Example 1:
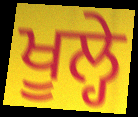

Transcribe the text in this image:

ਖੂਲ੍ਹ੍ਹੇ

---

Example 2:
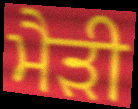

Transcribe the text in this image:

ਮੈੜੀ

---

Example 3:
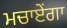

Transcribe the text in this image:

ਮਚਾਏਂਗਾ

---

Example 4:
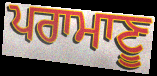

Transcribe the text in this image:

ਪਰਾਮਾਣੂ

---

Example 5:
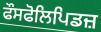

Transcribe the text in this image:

ਫੌਸਫੋਲਿਪਿਡਜ਼